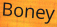
Boney